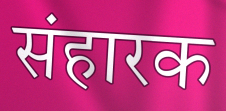
संहारक